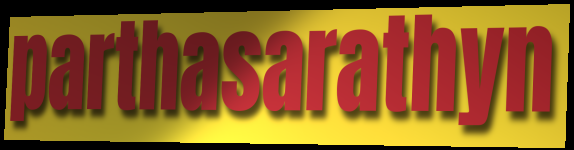
parthasarathyn